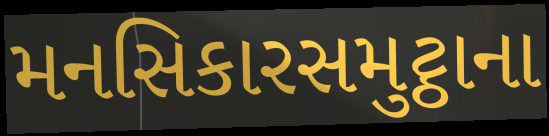
મનસિકારસમુટ્ઠાના